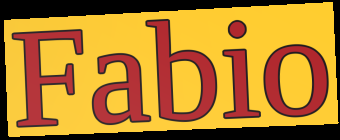
Fabio